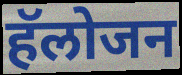
हॅलोजन